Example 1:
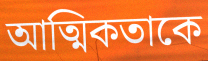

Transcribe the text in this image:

আত্মিকতাকে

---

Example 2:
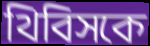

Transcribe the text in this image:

থিবিসকে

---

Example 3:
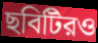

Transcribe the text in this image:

ছবিটিরও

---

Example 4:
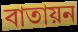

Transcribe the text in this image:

বাতায়ন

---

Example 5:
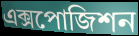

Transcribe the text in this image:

এক্সপোজিশন